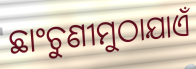
ଛାଂଚୁଣୀମୁଠାଯାଏଁ